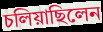
চলিয়াছিলেন